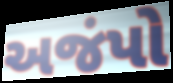
અજંપો